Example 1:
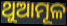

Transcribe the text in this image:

ଥୁଆମୂଳ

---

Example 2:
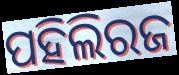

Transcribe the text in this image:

ପହିଲିରଜ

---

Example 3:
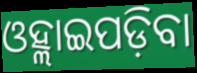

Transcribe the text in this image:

ଓହ୍ଲାଇପଡ଼ିବା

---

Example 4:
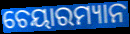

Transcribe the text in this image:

ଚେୟାରମ୍ୟାନ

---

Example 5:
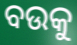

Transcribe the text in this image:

ବଉକୁ